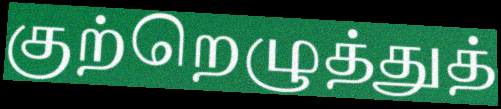
குற்றெழுத்துத்